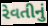
રેવતીનું